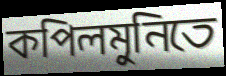
কপিলমুনিতে